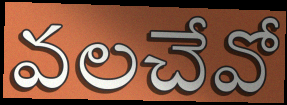
వలచేవో